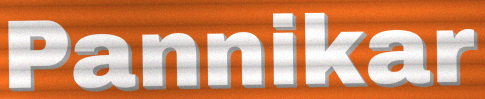
Pannikar